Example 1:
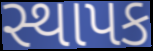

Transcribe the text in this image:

સ્થાપક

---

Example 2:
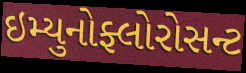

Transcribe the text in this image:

ઇમ્યુનોફ્લોરોસન્ટ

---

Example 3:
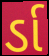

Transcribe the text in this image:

ર્ડા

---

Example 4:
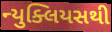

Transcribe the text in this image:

ન્યુક્લિયસથી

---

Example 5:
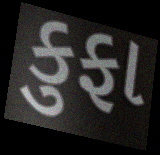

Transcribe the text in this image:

કુફા